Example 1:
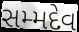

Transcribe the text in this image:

સમ્મદેવ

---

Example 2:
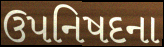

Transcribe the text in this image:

ઉપનિષદના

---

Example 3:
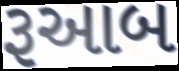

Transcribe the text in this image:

રૂઆબ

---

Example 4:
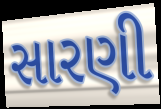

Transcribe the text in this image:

સારણી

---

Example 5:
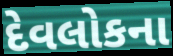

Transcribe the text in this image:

દેવલોકના